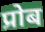
प्रोब